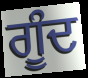
ਗੂੰਦ